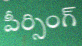
పీర్సింగ్